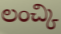
లంచ్కి